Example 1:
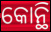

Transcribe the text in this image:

କୋନ୍ଥି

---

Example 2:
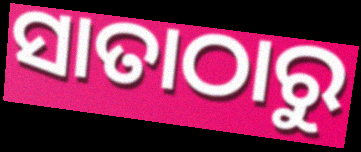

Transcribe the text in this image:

ସାତାଠାରୁ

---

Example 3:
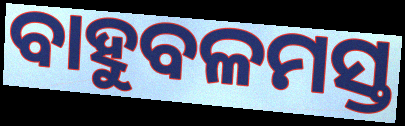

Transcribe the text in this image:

ବାହୁବଳମସ୍ତ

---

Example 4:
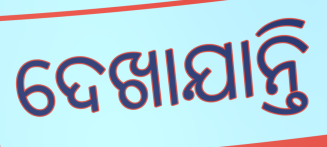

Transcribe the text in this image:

ଦେଖାଯାନ୍ତି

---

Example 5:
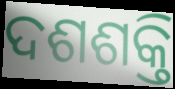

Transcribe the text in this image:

ଦଶଶକ୍ତି